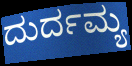
ದುರ್ದಮ್ಯ